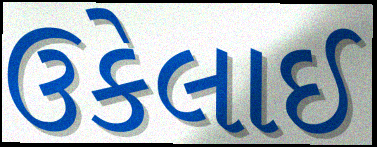
ઉકેલાઈ